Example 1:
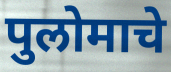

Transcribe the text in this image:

पुलोमाचे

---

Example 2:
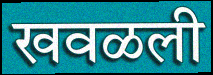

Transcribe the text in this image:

खवळली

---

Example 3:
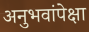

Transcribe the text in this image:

अनुभवांपेक्षा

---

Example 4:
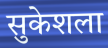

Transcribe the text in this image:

सुकेशला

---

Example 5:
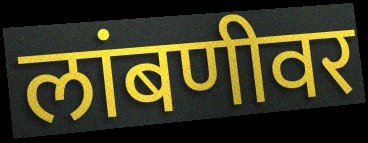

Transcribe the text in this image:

लांबणीवर